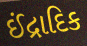
ઈંદ્રાદિક